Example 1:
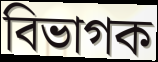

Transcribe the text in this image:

বিভাগক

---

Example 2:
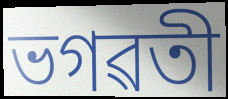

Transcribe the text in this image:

ভগৱতী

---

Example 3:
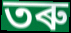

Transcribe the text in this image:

তৰু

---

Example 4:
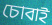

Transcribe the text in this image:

চোবাই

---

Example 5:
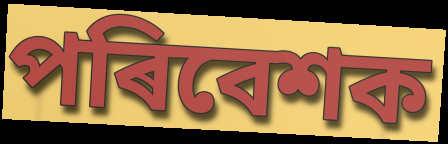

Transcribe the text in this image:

পৰিবেশক